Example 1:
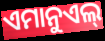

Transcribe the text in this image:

ଏମାନୁଏଲ୍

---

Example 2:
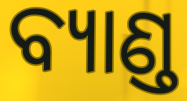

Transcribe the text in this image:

ବ୍ୟାଣ୍ଡ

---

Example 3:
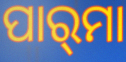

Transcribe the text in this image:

ପାର୍‌ମା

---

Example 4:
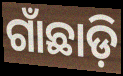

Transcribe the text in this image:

ଗାଁଛାଡ଼ି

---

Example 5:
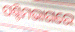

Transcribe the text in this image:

ପଶ୍ଚିମଭାଗରେ